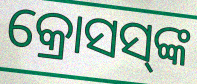
କ୍ରୋସସ୍‌ଙ୍କ